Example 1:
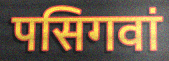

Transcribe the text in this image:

पसिगवां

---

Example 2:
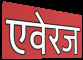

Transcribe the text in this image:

एवेरज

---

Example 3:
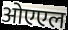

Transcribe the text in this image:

ओएएल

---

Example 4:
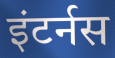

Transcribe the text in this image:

इंटर्नस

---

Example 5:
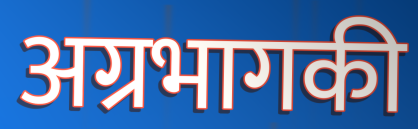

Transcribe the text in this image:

अग्रभागकी